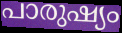
പാരുഷ്യം